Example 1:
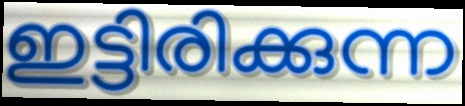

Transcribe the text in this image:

ഇട്ടിരിക്കുന്ന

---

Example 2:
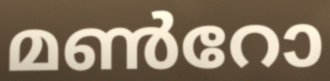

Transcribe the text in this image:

മൺറോ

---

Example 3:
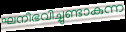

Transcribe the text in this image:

ഘനീഭവിച്ചുണ്ടാകുന്ന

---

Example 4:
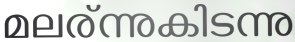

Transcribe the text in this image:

മലര്ന്നുകിടന്നു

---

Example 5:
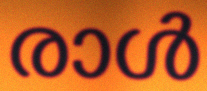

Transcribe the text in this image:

രാൾ